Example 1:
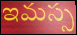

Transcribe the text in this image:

ఇమస్స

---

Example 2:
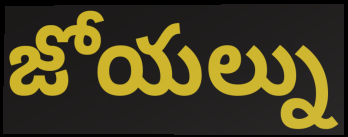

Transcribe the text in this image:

జోయల్ను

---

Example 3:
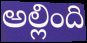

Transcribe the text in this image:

అల్లింది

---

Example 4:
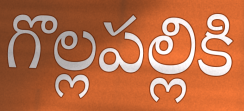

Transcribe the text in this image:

గొల్లపల్లికి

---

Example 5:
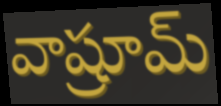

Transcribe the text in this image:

వాష్రూమ్